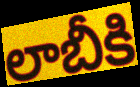
లాబీకి